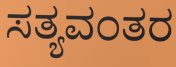
ಸತ್ಯವಂತರ